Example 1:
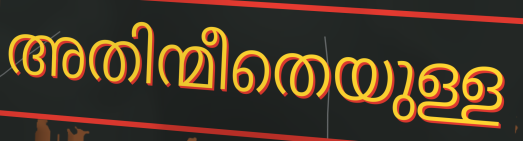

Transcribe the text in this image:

അതിന്മീതെയുള്ള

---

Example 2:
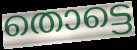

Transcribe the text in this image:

തൊട്ടെ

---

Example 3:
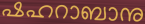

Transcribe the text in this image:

ഷഹറാബാനു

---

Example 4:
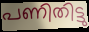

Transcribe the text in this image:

പണിതിട്ടു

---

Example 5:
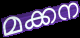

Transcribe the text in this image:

മക്കന